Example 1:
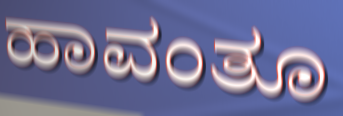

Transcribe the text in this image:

ಹಾವಂತೂ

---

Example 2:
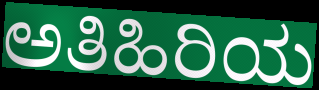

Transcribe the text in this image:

ಅತಿಹಿರಿಯ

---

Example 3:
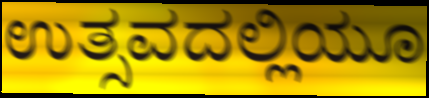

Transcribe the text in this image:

ಉತ್ಸವದಲ್ಲಿಯೂ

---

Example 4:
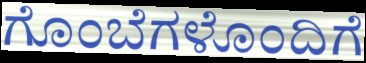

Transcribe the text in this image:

ಗೊಂಬೆಗಳೊಂದಿಗೆ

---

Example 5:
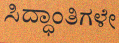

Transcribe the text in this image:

ಸಿದ್ಧಾಂತಿಗಳೇ